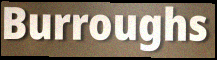
Burroughs